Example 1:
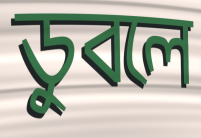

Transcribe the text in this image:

ডুবলে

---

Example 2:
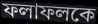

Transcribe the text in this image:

ফলাফলকে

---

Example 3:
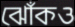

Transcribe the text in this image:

ঝোঁকও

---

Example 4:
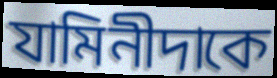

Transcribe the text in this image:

যামিনীদাকে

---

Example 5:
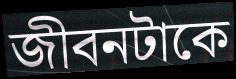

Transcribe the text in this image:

জীবনটাকে